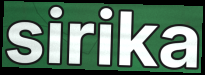
sirika